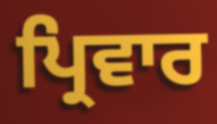
ਪ੍ਰਿਵਾਰ